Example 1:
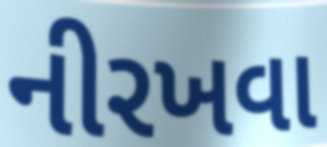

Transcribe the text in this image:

નીરખવા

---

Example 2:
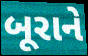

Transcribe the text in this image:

બૂરાને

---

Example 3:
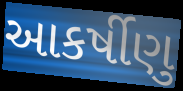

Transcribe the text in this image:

આકર્ષીણુ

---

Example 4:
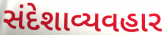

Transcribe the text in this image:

સંદેશાવ્યવહાર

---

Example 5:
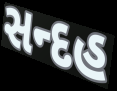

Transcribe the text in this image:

સન્દહ